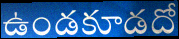
ఉండకూడదో